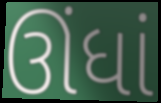
ઊંધાં